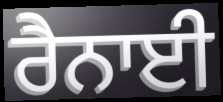
ਰੈਨਾਈ